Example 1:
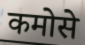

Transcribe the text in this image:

कमोसे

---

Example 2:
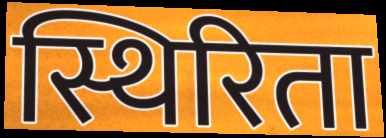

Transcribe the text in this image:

स्थिरिता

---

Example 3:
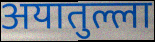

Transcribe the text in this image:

अयातुल्‍ला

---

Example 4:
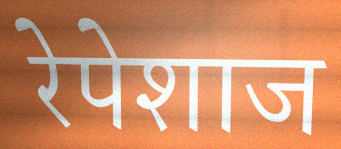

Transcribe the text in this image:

रेपेशाज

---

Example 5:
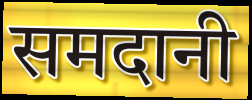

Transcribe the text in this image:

समदानी